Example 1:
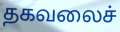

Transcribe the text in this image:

தகவலைச்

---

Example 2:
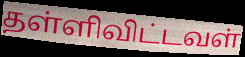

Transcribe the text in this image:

தள்ளிவிட்டவள்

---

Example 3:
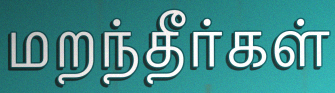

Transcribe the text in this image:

மறந்தீர்கள்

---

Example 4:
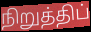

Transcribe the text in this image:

நிறுத்திப்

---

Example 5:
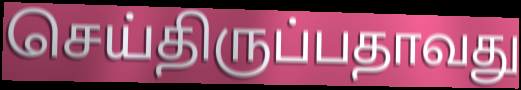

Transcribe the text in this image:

செய்திருப்பதாவது